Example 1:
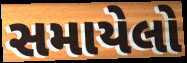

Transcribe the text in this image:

સમાયેલો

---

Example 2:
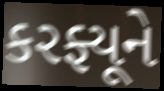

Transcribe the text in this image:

કરફ્યૂને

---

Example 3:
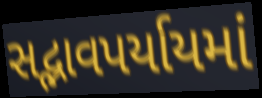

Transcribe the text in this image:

સદ્ભાવપર્યાયમાં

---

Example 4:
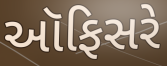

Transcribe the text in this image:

ઑફિસરે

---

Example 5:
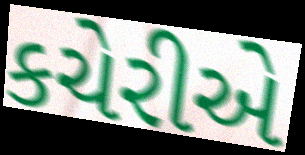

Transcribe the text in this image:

કચેરીએ